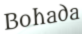
Bohada